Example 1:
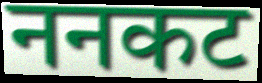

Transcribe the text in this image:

ननकट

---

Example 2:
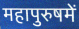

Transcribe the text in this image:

महापुरुषमें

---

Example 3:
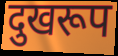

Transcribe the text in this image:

दुखरूप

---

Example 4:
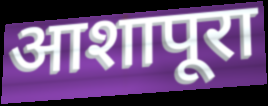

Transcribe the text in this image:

आशापूरा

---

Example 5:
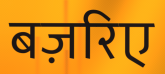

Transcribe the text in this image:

बज़रिए